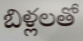
బిళ్లలతో